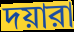
দয়ারা